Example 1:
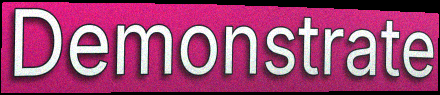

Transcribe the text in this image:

Demonstrate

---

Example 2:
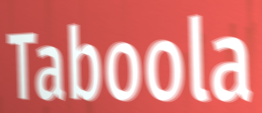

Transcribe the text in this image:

Taboola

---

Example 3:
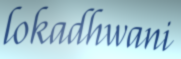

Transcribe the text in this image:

lokadhwani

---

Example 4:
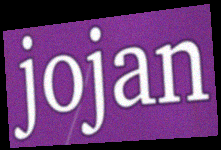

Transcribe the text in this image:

jojan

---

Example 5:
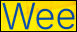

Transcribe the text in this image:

Wee